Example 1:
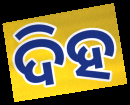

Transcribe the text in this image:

ଦିହ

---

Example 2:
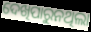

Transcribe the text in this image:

ଦେଖିପାରୁନଥିଲା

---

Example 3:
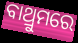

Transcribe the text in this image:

ବାଥ୍ରୁମରେ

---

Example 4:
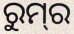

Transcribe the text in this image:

ରୁମ୍‌ର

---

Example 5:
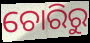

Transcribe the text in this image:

ଚୋରିରୁ